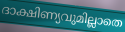
ദാക്ഷിണ്യവുമില്ലാതെ